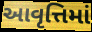
આવૃત્તિમાં